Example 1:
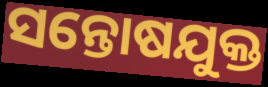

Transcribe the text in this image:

ସନ୍ତୋଷଯୁକ୍ତ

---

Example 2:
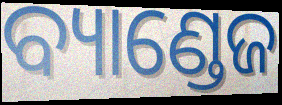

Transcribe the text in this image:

ବ୍ୟାଣ୍ଡେଜ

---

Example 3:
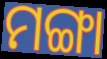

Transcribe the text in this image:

ମଙ୍ଗା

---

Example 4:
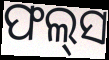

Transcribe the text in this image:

ଫଲ୍‍ସ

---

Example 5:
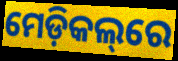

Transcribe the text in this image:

ମେଡ଼ିକଲ୍‌ରେ